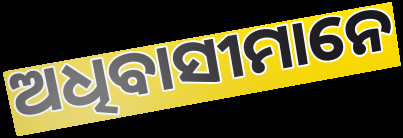
ଅଧିବାସୀମାନେ